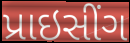
પ્રાઇસીંગ